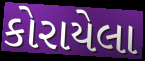
કોરાયેલા